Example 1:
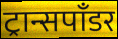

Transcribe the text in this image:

ट्रान्सपाँडर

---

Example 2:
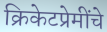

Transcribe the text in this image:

क्रिकेटप्रेमींचे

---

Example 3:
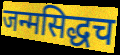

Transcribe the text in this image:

जन्मसिद्धच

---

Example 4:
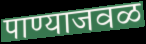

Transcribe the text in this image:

पाण्याजवळ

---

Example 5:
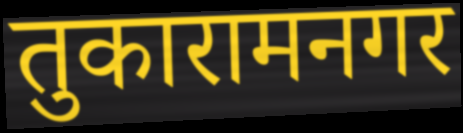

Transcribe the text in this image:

तुकारामनगर